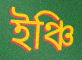
ইঞ্চি